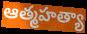
ఆత్మహత్యా